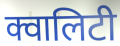
क्‍वालिटी